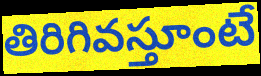
తిరిగివస్తూంటే